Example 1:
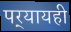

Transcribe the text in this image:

पर्यायही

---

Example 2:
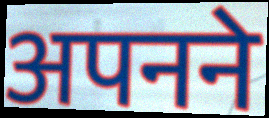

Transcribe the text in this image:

अपनने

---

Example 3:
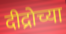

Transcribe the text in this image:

दीद्रोच्या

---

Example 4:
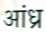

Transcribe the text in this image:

आंध्र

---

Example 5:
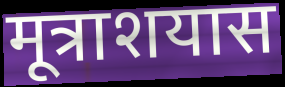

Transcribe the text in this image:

मूत्राशयास